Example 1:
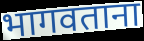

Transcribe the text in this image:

भागवताना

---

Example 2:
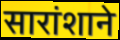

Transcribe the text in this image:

सारांशाने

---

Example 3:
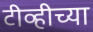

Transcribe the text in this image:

टीव्हीच्या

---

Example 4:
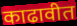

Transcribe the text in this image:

काढावीत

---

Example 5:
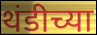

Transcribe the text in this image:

थंडीच्या